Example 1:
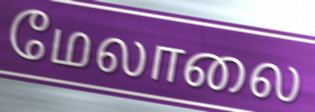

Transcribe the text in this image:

மேலாலை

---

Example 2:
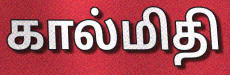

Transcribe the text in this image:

கால்மிதி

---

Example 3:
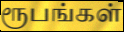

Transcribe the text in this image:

ரூபங்கள்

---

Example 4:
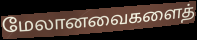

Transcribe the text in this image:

மேலானவைகளைத்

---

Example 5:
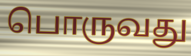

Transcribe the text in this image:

பொருவது